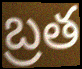
బ్రత